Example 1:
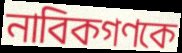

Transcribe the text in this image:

নাবিকগণকে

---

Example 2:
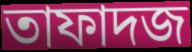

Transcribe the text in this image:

তাফাদজ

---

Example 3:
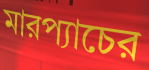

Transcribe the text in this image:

মারপ্যাচের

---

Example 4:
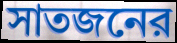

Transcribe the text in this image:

সাতজনের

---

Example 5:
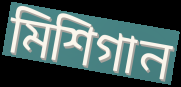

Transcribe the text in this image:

মিশিগান